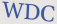
WDC